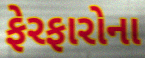
ફેરફારોના